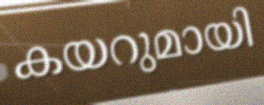
കയറുമായി